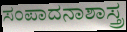
ಸಂಪಾದನಾಶಾಸ್ತ್ರ